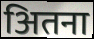
अितना